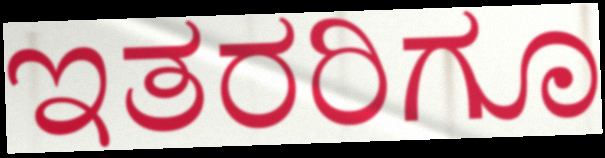
ಇತರರಿಗೂ